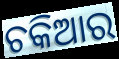
ଚକିଆର